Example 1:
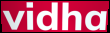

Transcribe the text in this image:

vidha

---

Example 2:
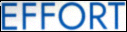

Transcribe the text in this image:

EFFORT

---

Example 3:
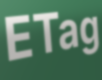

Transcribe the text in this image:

ETag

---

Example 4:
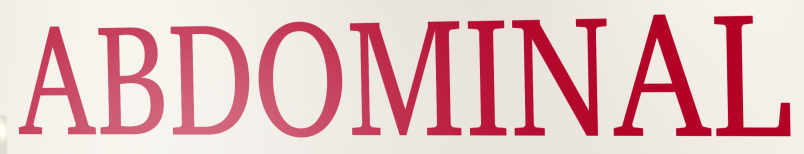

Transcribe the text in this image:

ABDOMINAL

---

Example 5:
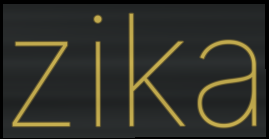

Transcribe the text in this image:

zika